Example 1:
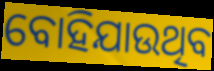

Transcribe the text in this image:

ବୋହିଯାଉଥିବ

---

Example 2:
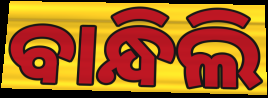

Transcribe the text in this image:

ବାନ୍ଧିଲି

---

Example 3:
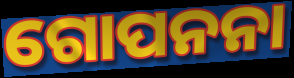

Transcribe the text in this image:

ଗୋପନନା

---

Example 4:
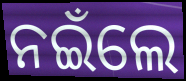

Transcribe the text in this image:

ନଇଁଲେ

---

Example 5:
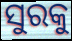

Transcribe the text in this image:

ସୁରକୁ